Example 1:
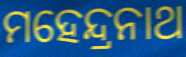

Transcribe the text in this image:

ମହେନ୍ଦ୍ରନାଥ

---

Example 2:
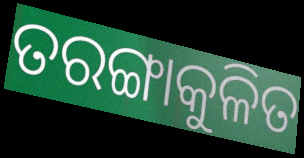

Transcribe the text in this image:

ତରଙ୍ଗାକୁଳିତ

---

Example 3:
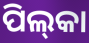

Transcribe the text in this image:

ପିଲ୍‌କା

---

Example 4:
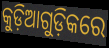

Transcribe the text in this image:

କୁଡ଼ିଆଗୁଡ଼ିକରେ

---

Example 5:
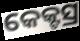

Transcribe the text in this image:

କେକ୍ଟସ୍ର